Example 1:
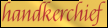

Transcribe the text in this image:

handkerchief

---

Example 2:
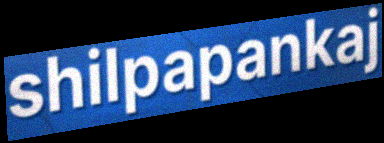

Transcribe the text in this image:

shilpapankaj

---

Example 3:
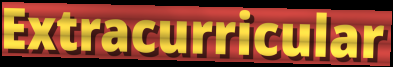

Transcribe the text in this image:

Extracurricular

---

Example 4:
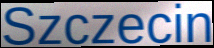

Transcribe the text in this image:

Szczecin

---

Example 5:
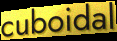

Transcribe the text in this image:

cuboidal